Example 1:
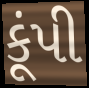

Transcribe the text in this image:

કૂંપી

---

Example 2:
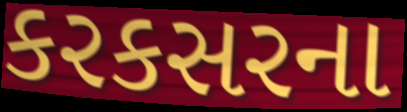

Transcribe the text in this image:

કરકસરના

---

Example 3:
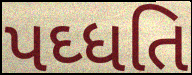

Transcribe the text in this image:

પઘ્ધતિ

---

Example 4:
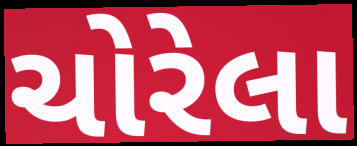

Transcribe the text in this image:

ચોરેલા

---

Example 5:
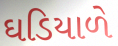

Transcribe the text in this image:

ઘડિયાળે